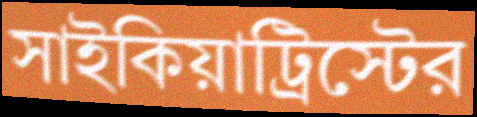
সাইকিয়াট্রিস্টের